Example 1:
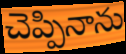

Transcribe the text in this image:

చెప్పినాను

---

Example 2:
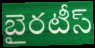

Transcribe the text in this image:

బైరటీస్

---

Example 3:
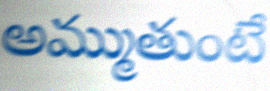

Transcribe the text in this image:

అమ్ముతుంటే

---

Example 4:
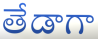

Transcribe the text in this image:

తేడాగా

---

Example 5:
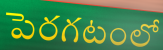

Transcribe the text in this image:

పెరగటంలో